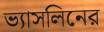
ভ্যাসলিনের